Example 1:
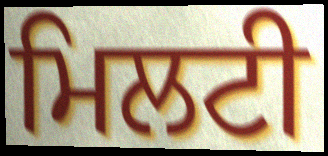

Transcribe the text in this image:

ਮਿਲਟੀ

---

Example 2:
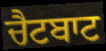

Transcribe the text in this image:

ਚੈਟਬਾਟ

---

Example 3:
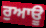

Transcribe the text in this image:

ਰੁਆਊ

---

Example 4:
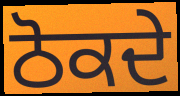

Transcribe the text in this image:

ਠੋਕਦੇ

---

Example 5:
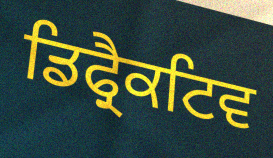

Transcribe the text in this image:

ਡਿਫ੍ਰੈਕਟਿਵ